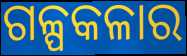
ଗଳ୍ପକଳାର